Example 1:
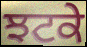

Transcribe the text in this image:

ਝਟਕੇ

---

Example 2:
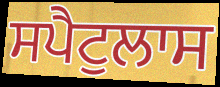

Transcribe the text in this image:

ਸਪੈਟੁਲਾਸ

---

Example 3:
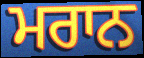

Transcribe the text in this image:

ਮਰਾਨ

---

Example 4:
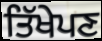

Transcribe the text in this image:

ਤਿੱਖੇਪਣ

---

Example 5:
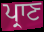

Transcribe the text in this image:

ਪ੍ਰਾਣ